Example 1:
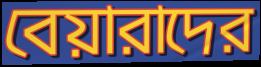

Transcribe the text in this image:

বেয়ারাদের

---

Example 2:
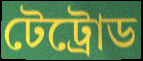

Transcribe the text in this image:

টেট্রোড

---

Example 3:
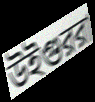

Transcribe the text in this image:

উইগুররা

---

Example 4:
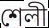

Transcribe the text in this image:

শেলী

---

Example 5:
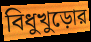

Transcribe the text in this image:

বিধুখুড়োর